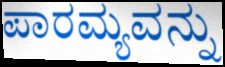
ಪಾರಮ್ಯವನ್ನು